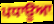
ਪਧਾਊਆ